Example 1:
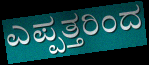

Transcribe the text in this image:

ಎಪ್ಪತ್ತರಿಂದ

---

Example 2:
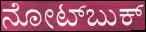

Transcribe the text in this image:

ನೋಟ್‌ಬುಕ್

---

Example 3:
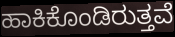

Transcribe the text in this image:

ಹಾಕಿಕೊಂಡಿರುತ್ತವೆ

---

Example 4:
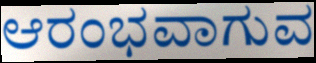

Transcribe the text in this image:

ಆರಂಭವಾಗುವ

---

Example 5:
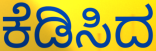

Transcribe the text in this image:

ಕೆಡಿಸಿದ